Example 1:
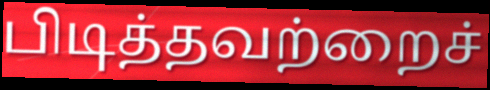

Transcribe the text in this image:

பிடித்தவற்றைச்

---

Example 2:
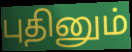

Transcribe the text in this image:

புதினும்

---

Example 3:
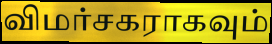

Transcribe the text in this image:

விமர்சகராகவும்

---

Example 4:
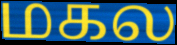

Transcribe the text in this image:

மகல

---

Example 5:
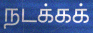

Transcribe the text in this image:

நடக்கக்